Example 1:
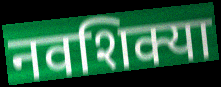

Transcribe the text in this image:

नवशिक्या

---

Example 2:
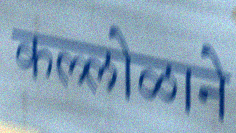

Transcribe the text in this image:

कल्लोळाने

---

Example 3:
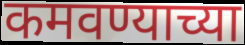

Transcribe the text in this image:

कमवण्याच्या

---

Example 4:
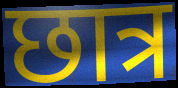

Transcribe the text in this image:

छात्र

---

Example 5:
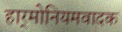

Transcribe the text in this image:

हार्मोनियमवादक